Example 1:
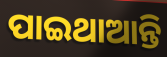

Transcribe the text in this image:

ପାଇଥାଆନ୍ତି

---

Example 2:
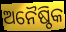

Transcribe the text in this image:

ଅନୈଷ୍ଠିକ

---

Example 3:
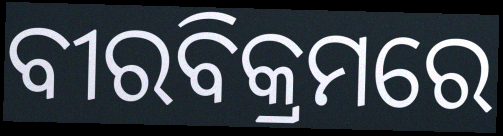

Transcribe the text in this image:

ବୀରବିକ୍ରମରେ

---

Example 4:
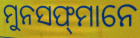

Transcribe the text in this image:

ମୁନସଫ୍‍ମାନେ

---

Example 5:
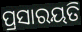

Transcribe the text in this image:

ପ୍ରସାରୟତି